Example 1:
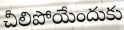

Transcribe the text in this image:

చీలిపోయేందుకు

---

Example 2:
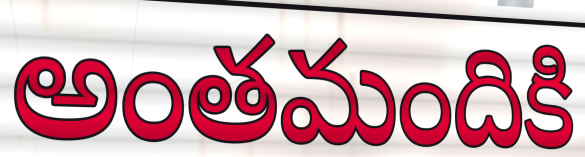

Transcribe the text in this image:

అంతమందికి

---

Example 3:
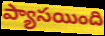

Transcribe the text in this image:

ప్యాసయింది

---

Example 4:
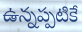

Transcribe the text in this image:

ఉన్నప్పటికే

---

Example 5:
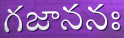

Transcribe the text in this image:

గజాననః